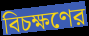
বিচক্ষণের